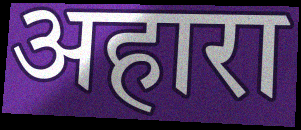
अहारा